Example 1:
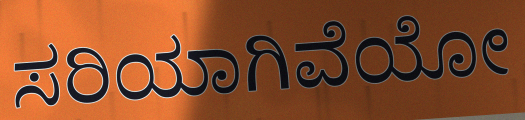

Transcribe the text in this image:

ಸರಿಯಾಗಿವೆಯೋ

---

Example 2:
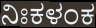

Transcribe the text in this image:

ನಿಃಕಳಂಕ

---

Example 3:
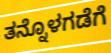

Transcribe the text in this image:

ತನ್ನೊಳಗಡೆಗೆ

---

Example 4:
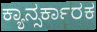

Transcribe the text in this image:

ಕ್ಯಾನ್ಸರ್ಕಾರಕ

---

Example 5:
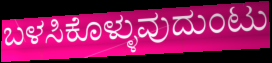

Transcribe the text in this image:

ಬಳಸಿಕೊಳ್ಳುವುದುಂಟು